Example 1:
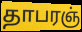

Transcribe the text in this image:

தாபரஞ்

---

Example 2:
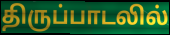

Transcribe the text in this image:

திருப்பாடலில்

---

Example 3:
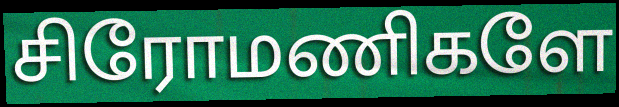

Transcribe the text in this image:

சிரோமணிகளே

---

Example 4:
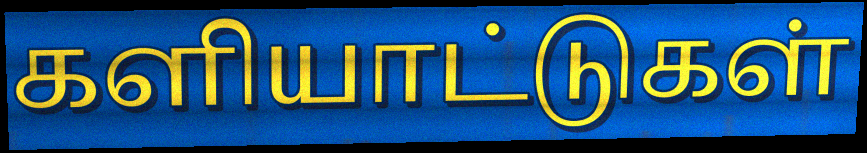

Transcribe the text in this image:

களியாட்டுகள்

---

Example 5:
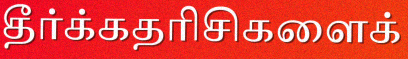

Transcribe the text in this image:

தீர்க்கதரிசிகளைக்